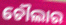
ଚୌଲାର